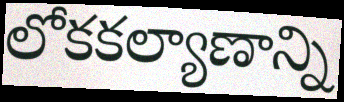
లోకకల్యాణాన్ని